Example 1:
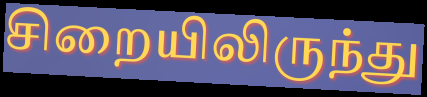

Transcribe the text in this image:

சிறையிலிருந்து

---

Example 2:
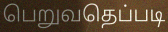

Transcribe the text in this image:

பெறுவதெப்படி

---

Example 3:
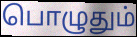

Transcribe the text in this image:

பொழுதும்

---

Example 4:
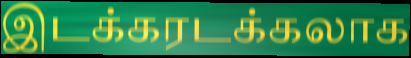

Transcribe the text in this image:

இடக்கரடக்கலாக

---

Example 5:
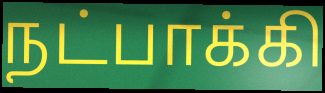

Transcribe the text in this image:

நட்பாக்கி